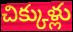
చిక్కుళ్లు